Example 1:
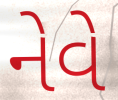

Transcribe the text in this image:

નેવે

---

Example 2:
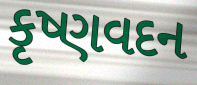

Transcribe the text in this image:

કૃષ્ણવદન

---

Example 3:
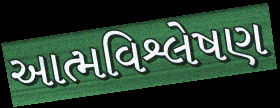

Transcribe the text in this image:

આત્મવિશ્લેષણ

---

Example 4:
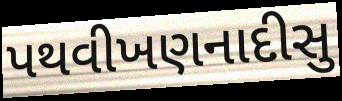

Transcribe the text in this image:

પથવીખણનાદીસુ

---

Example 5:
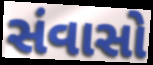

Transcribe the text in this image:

સંવાસો